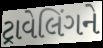
ટ્રાવેલિંગને